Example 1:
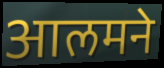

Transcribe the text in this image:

आलमने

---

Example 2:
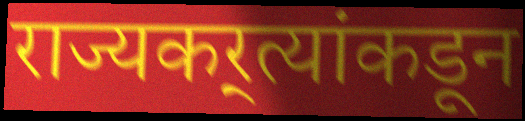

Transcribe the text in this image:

राज्यकर्त्यांकडून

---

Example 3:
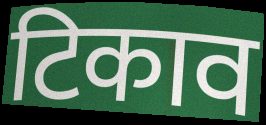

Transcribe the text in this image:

टिकाव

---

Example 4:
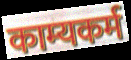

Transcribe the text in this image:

काम्यकर्म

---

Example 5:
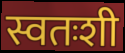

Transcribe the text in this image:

स्वतःशी